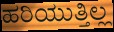
ಹರಿಯುತ್ತಿಲ್ಲ